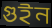
গুইন